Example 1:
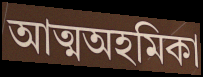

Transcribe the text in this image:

আত্মঅহমিকা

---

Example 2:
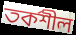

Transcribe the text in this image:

তর্কশীল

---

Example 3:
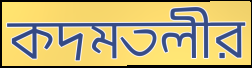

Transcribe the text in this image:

কদমতলীর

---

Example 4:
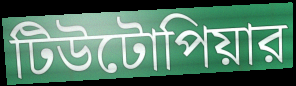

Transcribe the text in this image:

টিউটোপিয়ার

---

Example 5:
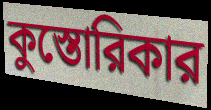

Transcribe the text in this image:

কুস্তোরিকার